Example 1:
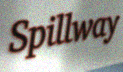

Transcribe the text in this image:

Spillway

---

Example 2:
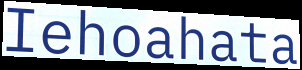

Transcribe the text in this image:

Iehoahata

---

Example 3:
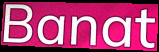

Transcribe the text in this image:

Banat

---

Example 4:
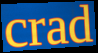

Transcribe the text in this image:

crad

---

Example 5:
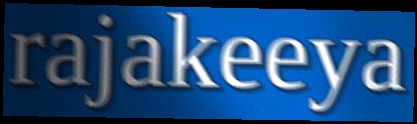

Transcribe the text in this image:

rajakeeya